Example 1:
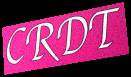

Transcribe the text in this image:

CRDT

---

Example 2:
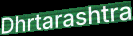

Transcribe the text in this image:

Dhrtarashtra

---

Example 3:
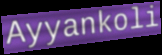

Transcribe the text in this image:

Ayyankoli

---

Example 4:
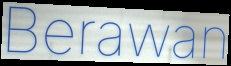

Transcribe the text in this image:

Berawan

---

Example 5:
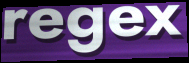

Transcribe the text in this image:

regex